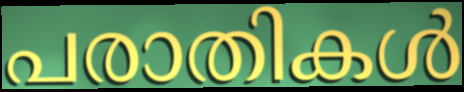
പരാതികൾ